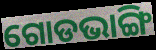
ଗୋଡଭାଙ୍ଗି